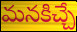
మనకిచ్చే